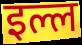
इल्ल